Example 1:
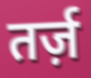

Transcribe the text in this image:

तर्ज़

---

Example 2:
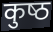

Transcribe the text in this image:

कुष्‍ठ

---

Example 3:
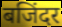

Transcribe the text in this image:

बजिंदर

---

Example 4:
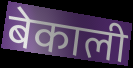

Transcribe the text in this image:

बेकाली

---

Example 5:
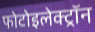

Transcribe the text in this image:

फोटोइलेक्ट्रॉन